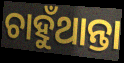
ଚାହୁଁଥାନ୍ତା